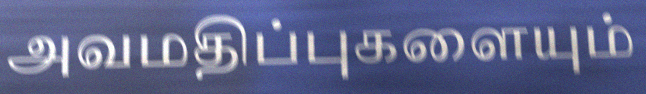
அவமதிப்புகளையும்